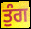
ਤੁੰਗ